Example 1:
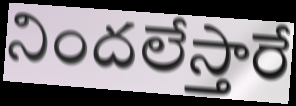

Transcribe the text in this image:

నిందలేస్తారే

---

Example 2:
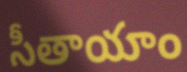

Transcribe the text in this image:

సీతాయాం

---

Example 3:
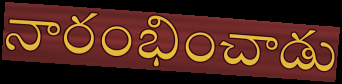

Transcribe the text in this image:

నారంభించాడు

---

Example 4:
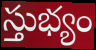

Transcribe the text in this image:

స్తుభ్యం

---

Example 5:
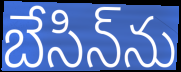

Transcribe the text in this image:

బేసిన్‌ను